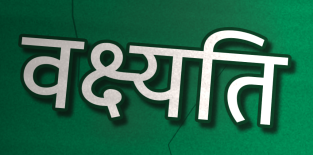
वक्ष्यति